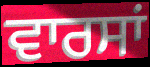
ਵਾਰਸਾਂ